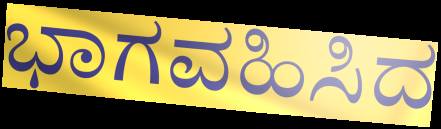
ಭಾಗವಹಿಸಿದ